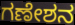
ಗಣೇಶನ